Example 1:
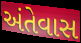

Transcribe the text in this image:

અંતેવાસ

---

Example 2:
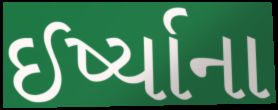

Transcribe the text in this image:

ઈર્ષ્યાના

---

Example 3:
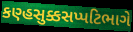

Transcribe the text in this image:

કણ્હસુક્કસપ્પટિભાગે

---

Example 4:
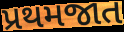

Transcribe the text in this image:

પ્રથમજાત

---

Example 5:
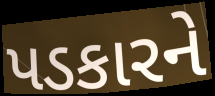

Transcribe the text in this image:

પડકારને